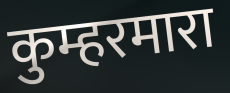
कुम्हरमारा